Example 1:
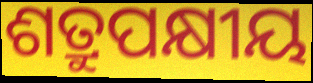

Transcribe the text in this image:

ଶତ୍ରୁପକ୍ଷୀୟ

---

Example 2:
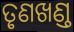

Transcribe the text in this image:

ତୃଣଖଣ୍ଡ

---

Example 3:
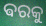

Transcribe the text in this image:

ଵରକୁ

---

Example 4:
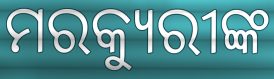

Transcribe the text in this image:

ମରକ୍ୟୁରୀଙ୍କ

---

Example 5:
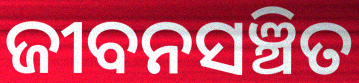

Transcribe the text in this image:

ଜୀବନସଞ୍ଚିତ